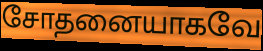
சோதனையாகவே